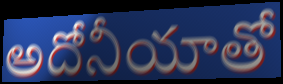
అదోనీయాతో